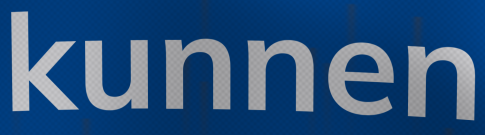
kunnen